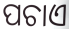
ପଚାଏ